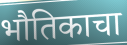
भौतिकाचा